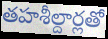
తహశీల్దార్లతో